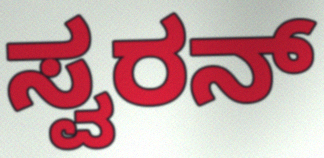
ಸ್ವರನ್